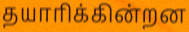
தயாரிக்கின்றன